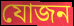
যোজন